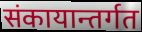
संकायान्तर्गत